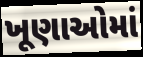
ખૂણાઓમાં